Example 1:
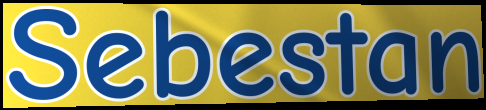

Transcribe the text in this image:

Sebestan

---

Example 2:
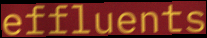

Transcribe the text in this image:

effluents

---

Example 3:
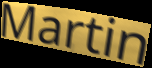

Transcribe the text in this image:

Martin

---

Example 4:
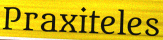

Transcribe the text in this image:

Praxiteles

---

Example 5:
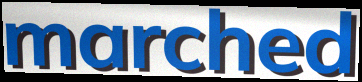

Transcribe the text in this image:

marched